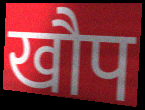
खौप